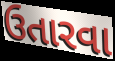
ઉતારવા